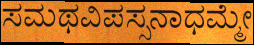
ಸಮಥವಿಪಸ್ಸನಾಧಮ್ಮೇ